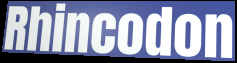
Rhincodon